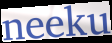
neeku